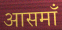
आसमाँ